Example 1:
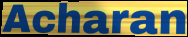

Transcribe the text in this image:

Acharan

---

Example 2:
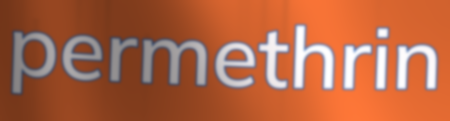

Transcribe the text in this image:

permethrin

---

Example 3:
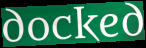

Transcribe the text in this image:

docked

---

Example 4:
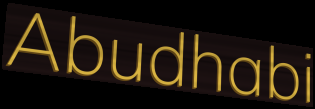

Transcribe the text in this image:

Abudhabi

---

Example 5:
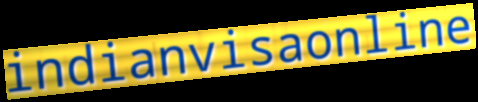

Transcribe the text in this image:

indianvisaonline